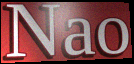
Nao